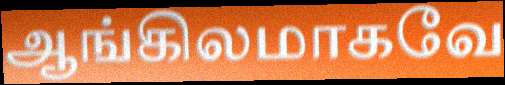
ஆங்கிலமாகவே